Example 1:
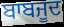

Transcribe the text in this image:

ਬਾਬਜੂਦ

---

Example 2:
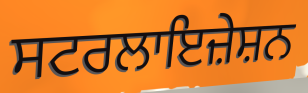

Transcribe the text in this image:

ਸਟਰਲਾਇਜ਼ੇਸ਼ਨ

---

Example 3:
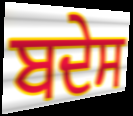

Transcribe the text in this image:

ਬਦੇਸ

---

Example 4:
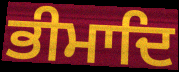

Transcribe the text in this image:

ਭੀਮਾਦਿ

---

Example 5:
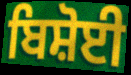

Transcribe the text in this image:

ਬਿਸ਼ੋਈ